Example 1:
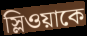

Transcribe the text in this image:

স্লিওয়াকে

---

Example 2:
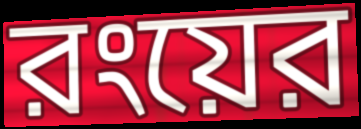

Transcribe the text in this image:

রংয়ের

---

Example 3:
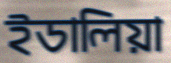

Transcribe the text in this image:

ইডালিয়া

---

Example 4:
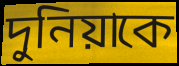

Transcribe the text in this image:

দুনিয়াকে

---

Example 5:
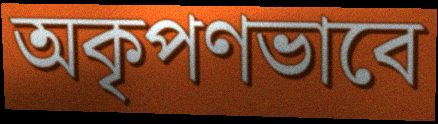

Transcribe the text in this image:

অকৃপণভাবে